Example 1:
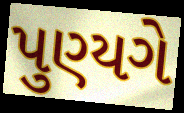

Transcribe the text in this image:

પુણ્યગે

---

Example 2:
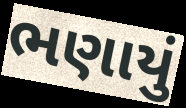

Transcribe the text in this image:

ભણાયું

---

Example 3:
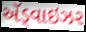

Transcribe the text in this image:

ઍડ્વાઇઝર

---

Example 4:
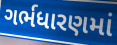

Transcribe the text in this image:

ગર્ભધારણમાં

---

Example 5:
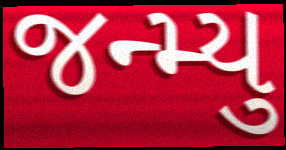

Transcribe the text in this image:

જન્મ્યુ